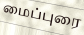
மைப்புரை